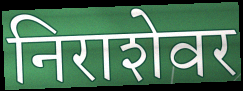
निराशेवर